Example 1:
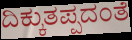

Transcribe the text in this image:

ದಿಕ್ಕುತಪ್ಪದಂತೆ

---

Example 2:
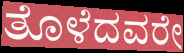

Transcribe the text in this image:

ತೊಳೆದವರೇ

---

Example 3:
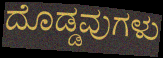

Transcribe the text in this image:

ದೊಡ್ಡವುಗಳು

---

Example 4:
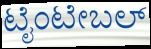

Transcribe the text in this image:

ಟೈಂಟೇಬಲ್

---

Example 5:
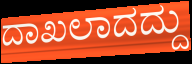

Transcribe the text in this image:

ದಾಖಲಾದದ್ದು